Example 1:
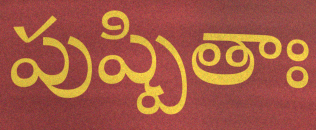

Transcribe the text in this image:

పుష్పితాః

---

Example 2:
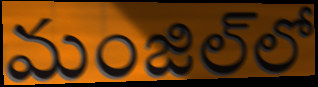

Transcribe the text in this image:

మంజిల్‌లో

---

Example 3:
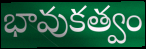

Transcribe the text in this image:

భావుకత్వం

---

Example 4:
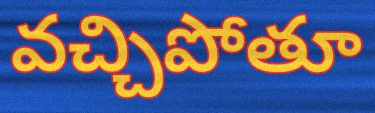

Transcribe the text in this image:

వచ్చిపోతూ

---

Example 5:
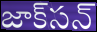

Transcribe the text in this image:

జాక్‌సన్